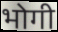
भोगी